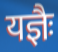
यज्ञैः